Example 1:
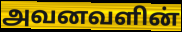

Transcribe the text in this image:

அவனவளின்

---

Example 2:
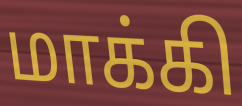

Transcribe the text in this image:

மாக்கி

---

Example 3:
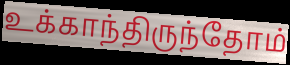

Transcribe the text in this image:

உக்காந்திருந்தோம்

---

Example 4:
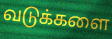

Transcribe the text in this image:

வடுக்களை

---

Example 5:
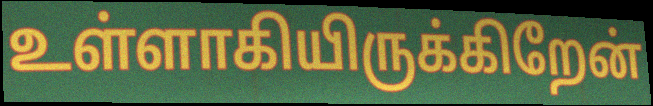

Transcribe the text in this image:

உள்ளாகியிருக்கிறேன்